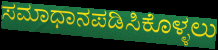
ಸಮಾಧಾನಪಡಿಸಿಕೊಳ್ಳಲು